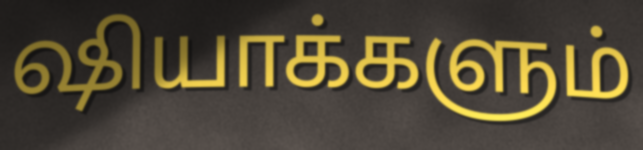
ஷியாக்களும்